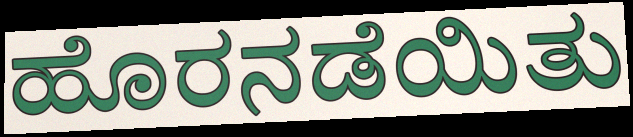
ಹೊರನಡೆಯಿತು